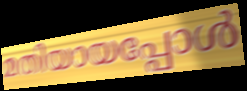
മതിയായപ്പോൾ